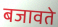
बजावते